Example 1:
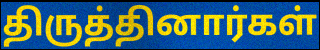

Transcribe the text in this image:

திருத்தினார்கள்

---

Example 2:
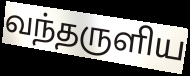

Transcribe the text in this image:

வந்தருளிய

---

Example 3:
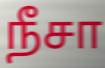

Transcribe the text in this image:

நீசா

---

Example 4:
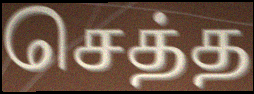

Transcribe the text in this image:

செத்த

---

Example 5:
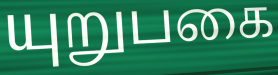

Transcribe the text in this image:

யுறுபகை